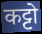
कट्टो